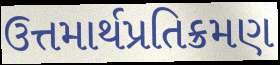
ઉત્તમાર્થપ્રતિક્રમણ